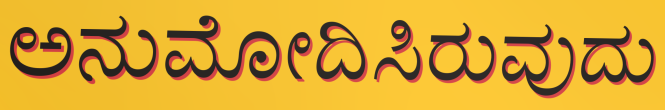
ಅನುಮೋದಿಸಿರುವುದು